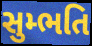
સુમ્ભતિ